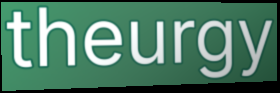
theurgy